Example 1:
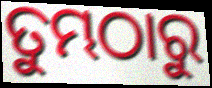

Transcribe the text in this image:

ତୁମ୍ଭଠାରୁ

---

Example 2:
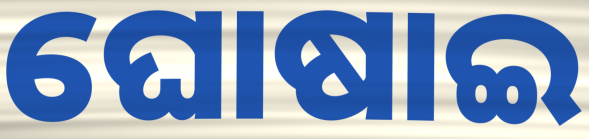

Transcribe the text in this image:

ଘୋଷାଇ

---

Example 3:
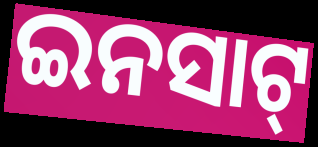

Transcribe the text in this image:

ଇନସାଟ୍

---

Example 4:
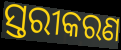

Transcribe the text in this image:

ସ୍ତରୀକରଣ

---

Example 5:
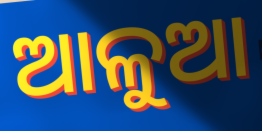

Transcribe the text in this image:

ଆଳୁଆ